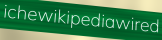
ichewikipediawired